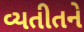
વ્યતીતને